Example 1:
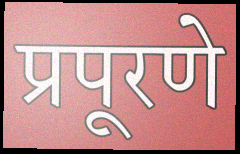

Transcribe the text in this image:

प्रपूरणे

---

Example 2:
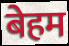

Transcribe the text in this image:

बेहम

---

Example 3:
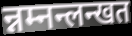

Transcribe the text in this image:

न्नम्नन्लन्खत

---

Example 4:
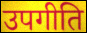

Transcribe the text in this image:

उपगीति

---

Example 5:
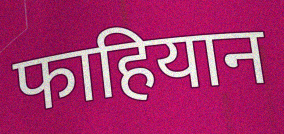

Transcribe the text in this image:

फाहियान